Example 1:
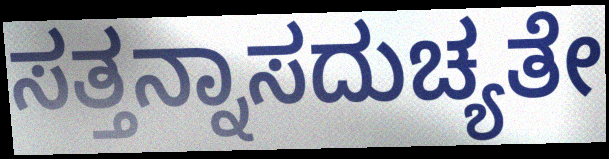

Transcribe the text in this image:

ಸತ್ತನ್ನಾಸದುಚ್ಯತೇ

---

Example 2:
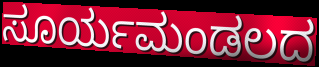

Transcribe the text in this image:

ಸೂರ್ಯಮಂಡಲದ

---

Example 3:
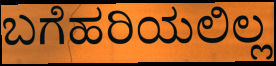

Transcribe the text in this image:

ಬಗೆಹರಿಯಲಿಲ್ಲ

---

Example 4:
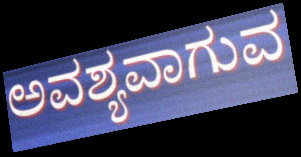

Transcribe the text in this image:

ಅವಶ್ಯವಾಗುವ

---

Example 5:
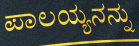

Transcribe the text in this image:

ಪಾಲಯ್ಯನನ್ನು